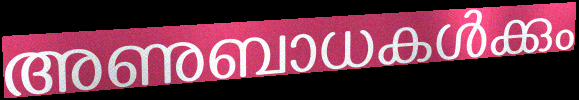
അണുബാധകൾക്കും